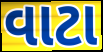
વાટા